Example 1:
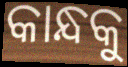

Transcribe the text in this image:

କାନ୍ଧକୁ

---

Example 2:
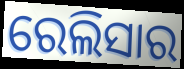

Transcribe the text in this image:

ରେଲିସାର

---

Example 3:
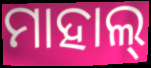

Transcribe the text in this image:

ମାହାଲ୍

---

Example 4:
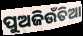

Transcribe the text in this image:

ପୁଅଜିଉଁତିଆ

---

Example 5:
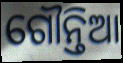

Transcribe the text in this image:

ଗୌନ୍ତିଆ